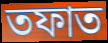
তফাত